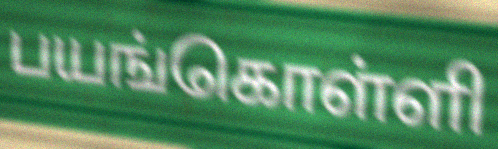
பயங்கொள்ளி